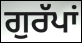
ਗੁਰੱਪਾਂ